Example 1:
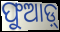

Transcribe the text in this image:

ଫୁଆଡ଼୍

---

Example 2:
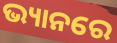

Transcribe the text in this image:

ଭ୍ୟାନରେ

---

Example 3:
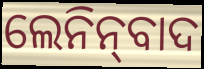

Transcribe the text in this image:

ଲେନିନ୍‌ବାଦ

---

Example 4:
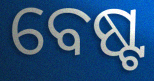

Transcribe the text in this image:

ବେଷ୍ଟ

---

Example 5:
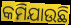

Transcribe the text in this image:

କମିଯାଉଛି